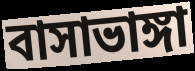
বাসাভাঙ্গা